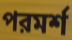
পরমর্শ